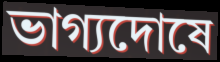
ভাগ্যদোষে